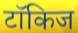
टॉकिज